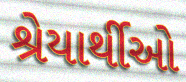
શ્રેયાર્થીઓ